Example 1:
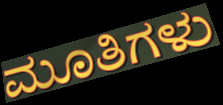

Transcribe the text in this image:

ಮೂತಿಗಳು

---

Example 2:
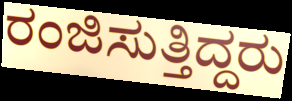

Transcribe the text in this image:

ರಂಜಿಸುತ್ತಿದ್ದರು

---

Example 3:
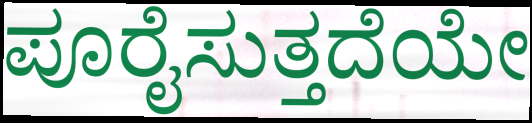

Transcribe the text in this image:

ಪೂರೈಸುತ್ತದೆಯೇ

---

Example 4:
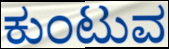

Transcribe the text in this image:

ಕುಂಟುವ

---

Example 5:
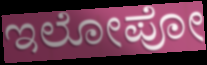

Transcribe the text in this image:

ಇಲೋಪೋ